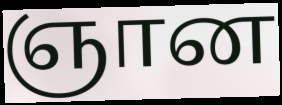
ஞான